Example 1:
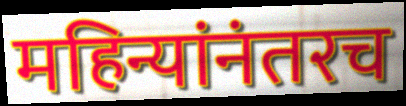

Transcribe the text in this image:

महिन्यांनंतरच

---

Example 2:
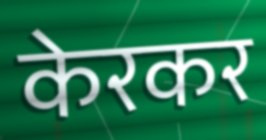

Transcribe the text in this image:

केरकर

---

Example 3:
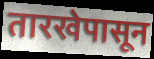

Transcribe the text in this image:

तारखेपासून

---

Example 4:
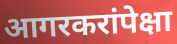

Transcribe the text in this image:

आगरकरांपेक्षा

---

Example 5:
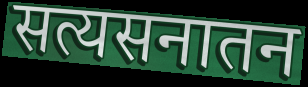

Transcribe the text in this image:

सत्यसनातन